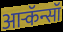
आर्‍कॅन्सॉ